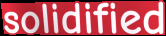
solidified